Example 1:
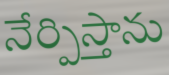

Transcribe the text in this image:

నేర్పిస్తాను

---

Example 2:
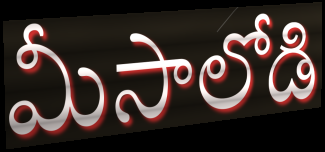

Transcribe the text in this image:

మీసాలోడి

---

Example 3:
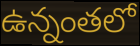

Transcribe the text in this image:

ఉన్నంతలో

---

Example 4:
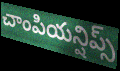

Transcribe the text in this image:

చాంపియన్షిప్స్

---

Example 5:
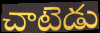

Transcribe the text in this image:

చాటెడు